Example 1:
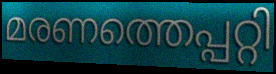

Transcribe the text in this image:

മരണത്തെപ്പറ്റി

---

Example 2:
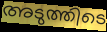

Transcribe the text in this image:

അടുത്തിടെ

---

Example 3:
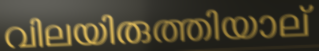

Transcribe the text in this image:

വിലയിരുത്തിയാല്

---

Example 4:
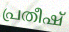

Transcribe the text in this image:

പ്രതീഷ്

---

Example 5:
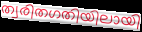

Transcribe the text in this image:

ത്വരിതഗതിയിലായി